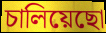
চালিয়েছো